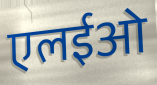
एलईओ